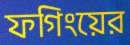
ফগিংয়ের